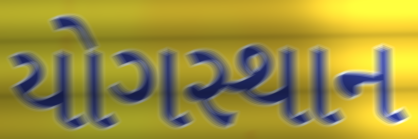
યોગસ્થાન